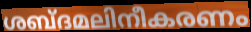
ശബ്ദമലിനീകരണം